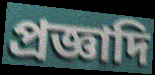
প্রজ্ঞাদি